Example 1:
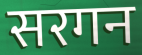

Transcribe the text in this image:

सरगन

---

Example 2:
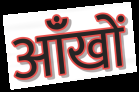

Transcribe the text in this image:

आंँखों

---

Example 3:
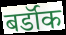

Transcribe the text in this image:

बर्डॉक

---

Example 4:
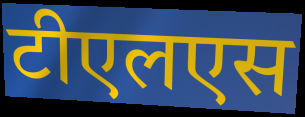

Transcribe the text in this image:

टीएलएस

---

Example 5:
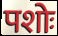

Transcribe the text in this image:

पशोः